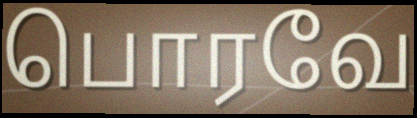
பொரவே